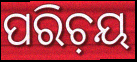
ପରିଚ଼ୟ